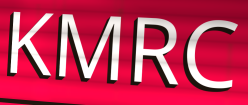
KMRC